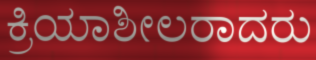
ಕ್ರಿಯಾಶೀಲರಾದರು